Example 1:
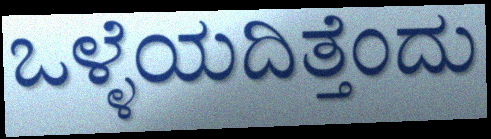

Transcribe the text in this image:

ಒಳ್ಳೆಯದಿತ್ತೆಂದು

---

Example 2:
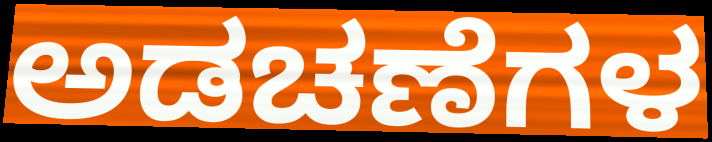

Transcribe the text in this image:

ಅಡಚಣೆಗಳ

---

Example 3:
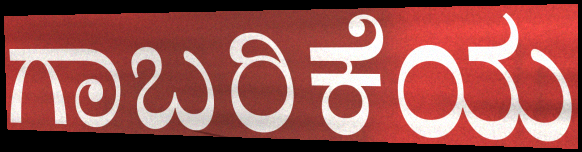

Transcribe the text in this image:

ಗಾಬರಿಕೆಯ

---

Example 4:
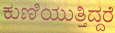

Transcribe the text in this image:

ಕುಣಿಯುತ್ತಿದ್ದರೆ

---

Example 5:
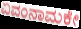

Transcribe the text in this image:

ಏವಂನಾಮಕೇ